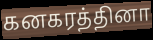
கனகரத்தினா